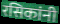
रसिकांनी